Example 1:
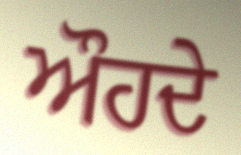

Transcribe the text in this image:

ਔਹਦੇ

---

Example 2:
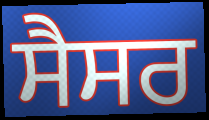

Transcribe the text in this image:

ਸੈਸਰ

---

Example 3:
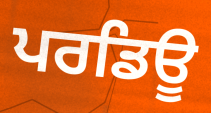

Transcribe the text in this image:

ਪਰਡਿਊ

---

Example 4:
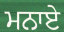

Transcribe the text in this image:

ਮਨਾਏ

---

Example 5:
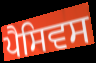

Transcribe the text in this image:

ਪੈਸਿਵਸ